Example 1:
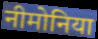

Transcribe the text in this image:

नीमोनिया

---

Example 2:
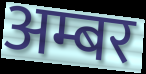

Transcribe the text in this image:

अम्‍बर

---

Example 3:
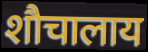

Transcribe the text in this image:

शौचालाय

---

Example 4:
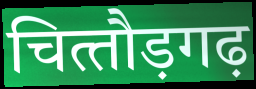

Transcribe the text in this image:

चित्‍तौड़गढ़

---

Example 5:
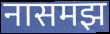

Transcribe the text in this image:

नासमझ